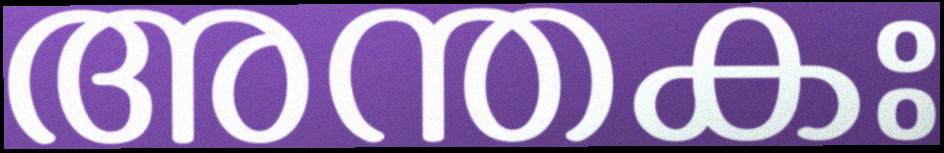
അന്തകഃ